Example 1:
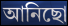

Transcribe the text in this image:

আনিছো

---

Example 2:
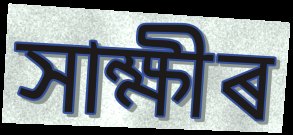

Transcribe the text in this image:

সাক্ষীৰ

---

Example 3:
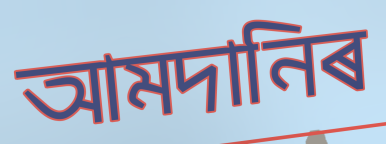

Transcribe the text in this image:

আমদানিৰ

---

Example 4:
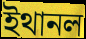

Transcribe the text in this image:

ইথানল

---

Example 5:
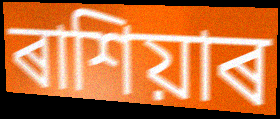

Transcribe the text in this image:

ৰাশিয়াৰ